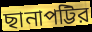
ছানাপট্টির